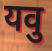
यवु